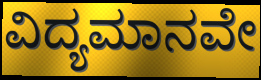
ವಿದ್ಯಮಾನವೇ